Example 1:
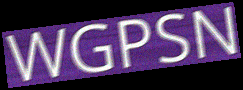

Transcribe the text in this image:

WGPSN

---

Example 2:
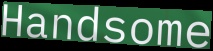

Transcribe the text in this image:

Handsome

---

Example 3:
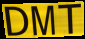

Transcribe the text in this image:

DMT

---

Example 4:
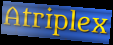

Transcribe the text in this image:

Atriplex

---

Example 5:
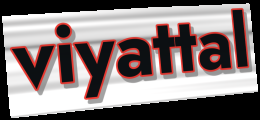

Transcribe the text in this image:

viyattal